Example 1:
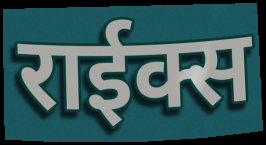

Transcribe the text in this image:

राईक्स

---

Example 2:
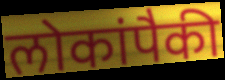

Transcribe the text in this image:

लोकांपैकी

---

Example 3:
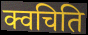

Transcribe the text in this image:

क्वचिति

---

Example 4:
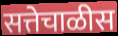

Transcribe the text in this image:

सत्तेचाळीस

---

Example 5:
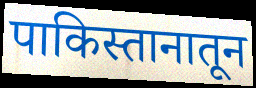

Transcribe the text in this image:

पाकिस्तानातून